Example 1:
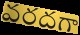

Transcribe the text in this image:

వరదగా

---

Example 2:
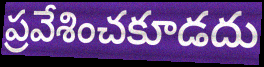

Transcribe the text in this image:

ప్రవేశించకూడదు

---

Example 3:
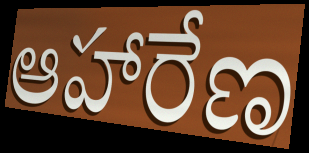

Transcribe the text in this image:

ఆహారేణ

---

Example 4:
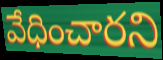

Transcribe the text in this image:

వేధించారని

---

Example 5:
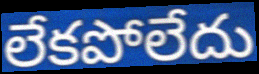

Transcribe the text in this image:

లేకపోలేదు